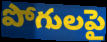
పోగులపై